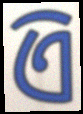
ଏି